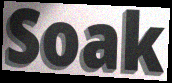
Soak